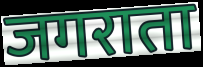
जगराता